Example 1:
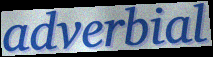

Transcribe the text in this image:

adverbial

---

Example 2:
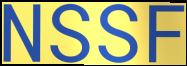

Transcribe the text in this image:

NSSF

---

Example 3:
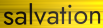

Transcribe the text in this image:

salvation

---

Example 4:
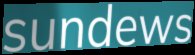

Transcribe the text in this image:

sundews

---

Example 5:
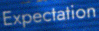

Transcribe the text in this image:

Expectation